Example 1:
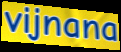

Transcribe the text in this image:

vijnana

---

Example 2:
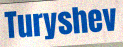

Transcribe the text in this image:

Turyshev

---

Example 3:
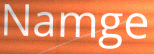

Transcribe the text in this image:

Namge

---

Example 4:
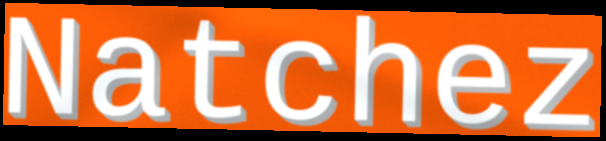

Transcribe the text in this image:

Natchez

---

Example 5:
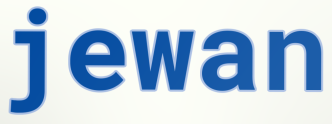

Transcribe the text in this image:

jewan